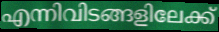
എന്നിവിടങ്ങളിലേക്ക്